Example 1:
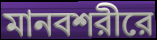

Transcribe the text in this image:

মানবশরীরে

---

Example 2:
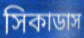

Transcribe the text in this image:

সিকাডাস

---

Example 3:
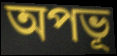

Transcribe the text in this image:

অপভূ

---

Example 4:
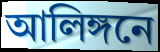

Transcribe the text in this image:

আলিঙ্গনে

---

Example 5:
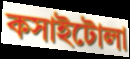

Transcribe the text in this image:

কসাইটোলা